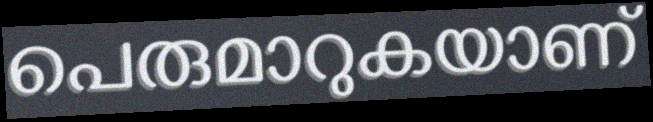
പെരുമാറുകയാണ്